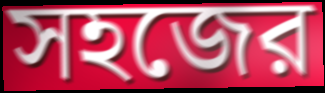
সহজের